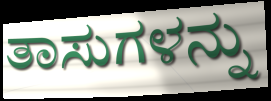
ತಾಸುಗಳನ್ನು